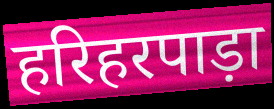
हरिहरपाड़ा